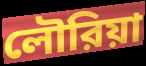
লৌরিয়া